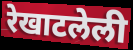
रेखाटलेली